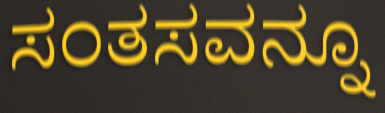
ಸಂತಸವನ್ನೂ